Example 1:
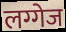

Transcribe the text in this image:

लग्गेज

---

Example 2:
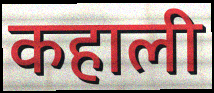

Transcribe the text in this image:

कहाली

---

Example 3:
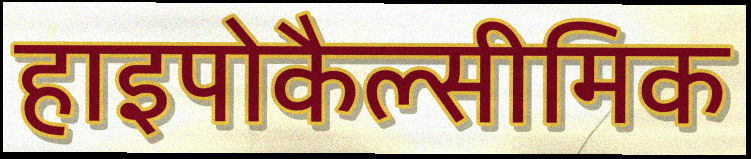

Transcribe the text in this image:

हाइपोकैल्सीमिक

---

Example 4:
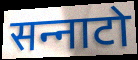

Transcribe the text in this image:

सन्नाटो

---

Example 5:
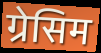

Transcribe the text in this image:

ग्रेसिम